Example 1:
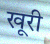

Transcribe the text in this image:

खूरी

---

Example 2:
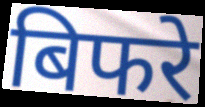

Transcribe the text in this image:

बिफरे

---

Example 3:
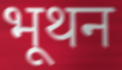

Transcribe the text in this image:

भूथन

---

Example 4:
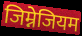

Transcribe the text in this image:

जिम्नेजियम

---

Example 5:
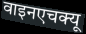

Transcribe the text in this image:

वाइनएचक्यू